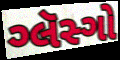
ગ્લૅસ્ગો